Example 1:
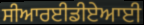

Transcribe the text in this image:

ਸੀਆਰਈਡੀਏਆਈ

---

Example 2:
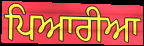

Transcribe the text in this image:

ਪਿਆਰੀਆ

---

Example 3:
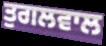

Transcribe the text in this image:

ਤੁਗਲਵਾਲ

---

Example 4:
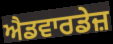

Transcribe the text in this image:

ਐਡਵਾਰਡੇਜ਼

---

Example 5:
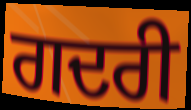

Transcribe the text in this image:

ਗਦਰੀ